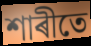
শাৰীতে